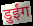
डुईंग